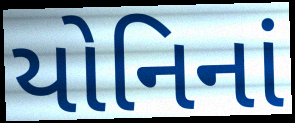
યોનિનાં